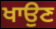
ਖਾਉਣ